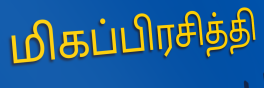
மிகப்பிரசித்தி